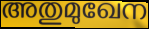
അതുമുഖേന